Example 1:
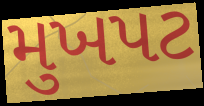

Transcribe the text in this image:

મુખપટ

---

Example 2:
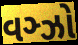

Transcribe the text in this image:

વઞ્ઝો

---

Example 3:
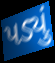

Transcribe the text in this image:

પડ્યું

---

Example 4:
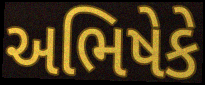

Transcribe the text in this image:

અભિષેકે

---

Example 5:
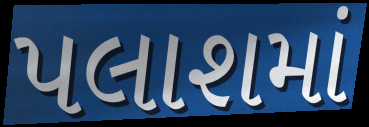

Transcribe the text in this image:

પલાશમાં